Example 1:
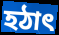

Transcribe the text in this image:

হঠাৎ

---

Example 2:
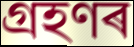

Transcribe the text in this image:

গ্ৰহণৰ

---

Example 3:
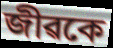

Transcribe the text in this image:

জীৱকে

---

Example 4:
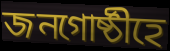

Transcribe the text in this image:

জনগোষ্ঠীহে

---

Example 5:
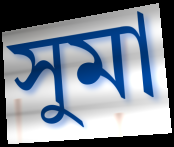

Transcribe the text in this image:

সুমা